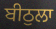
ਬੀਠੁਲਾ